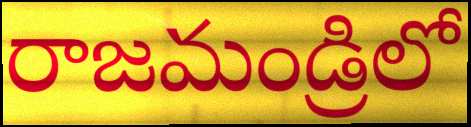
రాజమండ్రిలో